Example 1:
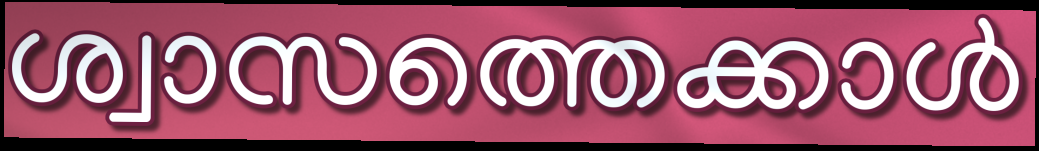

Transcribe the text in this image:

ശ്വാസത്തെക്കാൾ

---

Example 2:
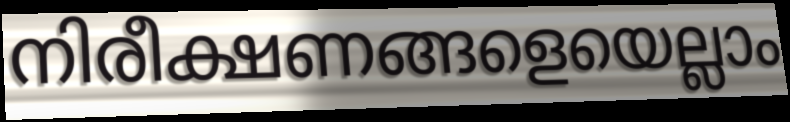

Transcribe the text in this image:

നിരീക്ഷണങ്ങളെയെല്ലാം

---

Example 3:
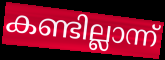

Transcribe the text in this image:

കണ്ടില്ലാന്ന്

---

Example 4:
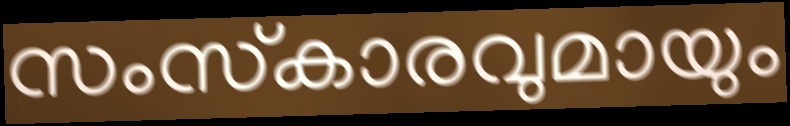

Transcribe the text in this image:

സംസ്‌കാരവുമായും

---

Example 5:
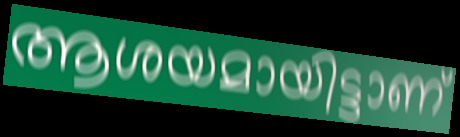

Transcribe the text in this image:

ആശയമായിട്ടാണ്